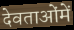
देवताओंमें